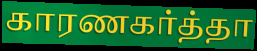
காரணகர்த்தா